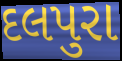
દલપુરા